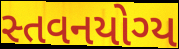
સ્તવનયોગ્ય